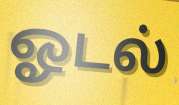
ஓடல்